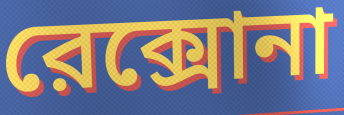
রেক্সোনা